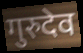
गुरुदेव